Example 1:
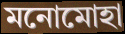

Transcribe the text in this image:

মনোমোহা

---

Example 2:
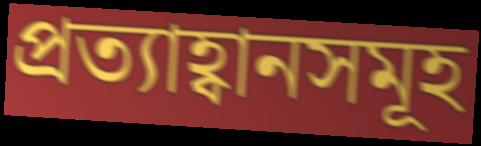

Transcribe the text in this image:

প্ৰত্যাহ্বানসমূহ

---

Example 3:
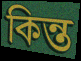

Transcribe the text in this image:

কিন্ত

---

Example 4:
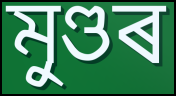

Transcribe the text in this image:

মুণ্ডৰ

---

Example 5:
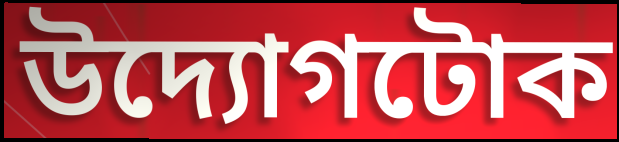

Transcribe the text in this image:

উদ্যোগটোক